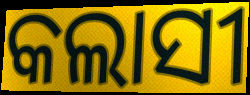
କଲାସୀ